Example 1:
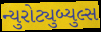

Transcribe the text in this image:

ન્યુરોટ્યુબ્યુલ્સ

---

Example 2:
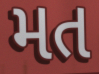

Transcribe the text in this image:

મત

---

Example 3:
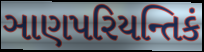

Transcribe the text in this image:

ઞાણપરિયન્તિકં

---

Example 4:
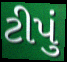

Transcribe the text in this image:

ટીપું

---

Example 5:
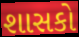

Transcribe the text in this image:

શાસકો